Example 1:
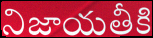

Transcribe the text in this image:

నిజాయతీకి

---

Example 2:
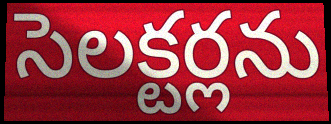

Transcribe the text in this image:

సెలక్టర్లను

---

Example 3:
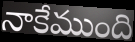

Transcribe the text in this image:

నాకేముంది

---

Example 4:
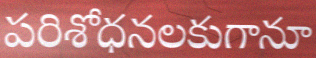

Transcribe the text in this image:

పరిశోధనలకుగానూ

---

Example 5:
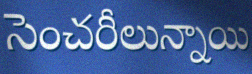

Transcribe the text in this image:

సెంచరీలున్నాయి